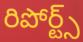
రిపోర్ట్స్